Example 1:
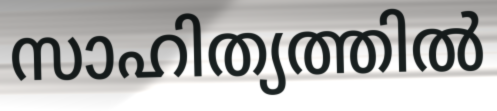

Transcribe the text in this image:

സാഹിത്യത്തിൽ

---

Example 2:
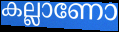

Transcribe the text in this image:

കല്ലാണോ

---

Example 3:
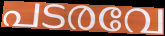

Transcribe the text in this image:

പടരവേ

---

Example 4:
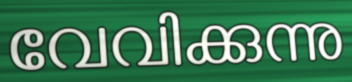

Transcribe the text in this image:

വേവിക്കുന്നു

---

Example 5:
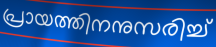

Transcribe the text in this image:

പ്രായത്തിനനുസരിച്ച്